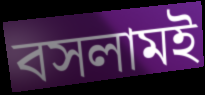
বসলামই